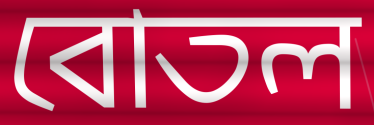
বোতল